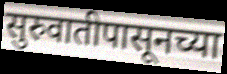
सुरुवातीपासूनच्या